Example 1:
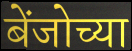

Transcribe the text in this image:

बेंजोच्या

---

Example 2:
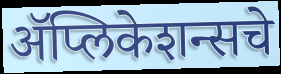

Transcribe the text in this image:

ॲप्लिकेशन्सचे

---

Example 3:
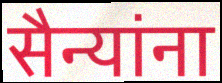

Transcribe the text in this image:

सैन्यांना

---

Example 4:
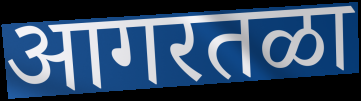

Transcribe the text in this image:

आगरतळा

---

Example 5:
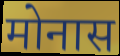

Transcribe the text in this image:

मोनास